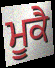
ਮੂਕੈ